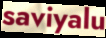
saviyalu